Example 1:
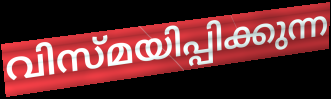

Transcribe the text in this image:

വിസ്മയിപ്പിക്കുന്ന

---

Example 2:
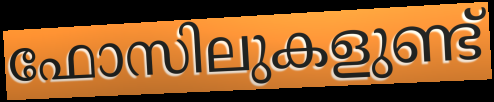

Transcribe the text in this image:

ഫോസിലുകളുണ്ട്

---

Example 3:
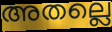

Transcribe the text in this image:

അതല്ലെ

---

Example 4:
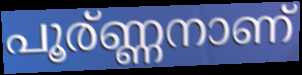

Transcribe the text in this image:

പൂര്ണ്ണനാണ്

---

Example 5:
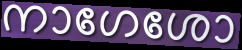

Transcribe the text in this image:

നാഗേശോ